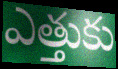
ఎత్తుకు